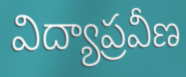
విద్యాప్రవీణ